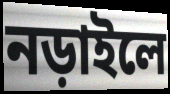
নড়াইলে